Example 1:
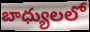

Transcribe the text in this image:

బాధ్యులలో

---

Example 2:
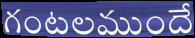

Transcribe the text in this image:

గంటలముందే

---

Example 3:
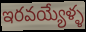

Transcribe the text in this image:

ఇరవయ్యేళ్ళ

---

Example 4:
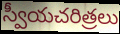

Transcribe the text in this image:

స్వీయచరిత్రలు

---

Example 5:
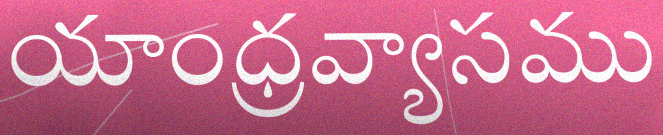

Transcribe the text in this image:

యాంధ్రవ్యాసము